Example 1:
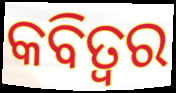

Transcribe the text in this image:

କବିତ୍ଵର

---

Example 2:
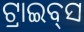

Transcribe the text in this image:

ଟ୍ରାଇବ୍‌ସ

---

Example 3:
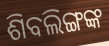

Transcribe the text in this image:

ଶିବଲିଙ୍ଗଙ୍କ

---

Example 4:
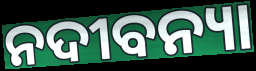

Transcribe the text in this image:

ନଦୀବନ୍ୟା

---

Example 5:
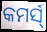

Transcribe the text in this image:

କମର୍ସ୍